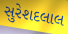
સુરેશદલાલ